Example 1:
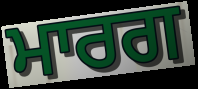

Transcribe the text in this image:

ਮਾਰਗ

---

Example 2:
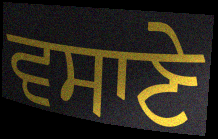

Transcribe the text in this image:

ਵਸਾਣੇ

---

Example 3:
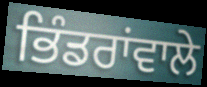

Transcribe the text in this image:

ਭਿੰਡਰਾਂਵਾਲੇ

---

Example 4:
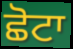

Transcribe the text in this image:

ਛੋਟਾ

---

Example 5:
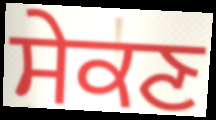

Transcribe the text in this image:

ਸੇਕਣ